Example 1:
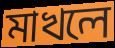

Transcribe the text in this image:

মাখলে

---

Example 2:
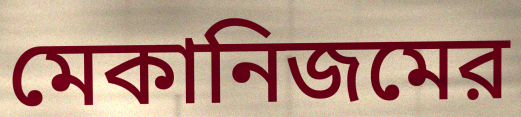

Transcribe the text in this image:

মেকানিজমের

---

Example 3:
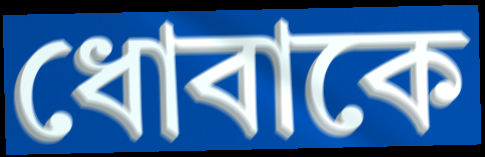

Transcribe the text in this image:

ধোবাকে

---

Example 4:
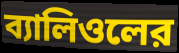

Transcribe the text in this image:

ব্যালিওলের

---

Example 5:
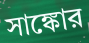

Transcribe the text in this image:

সাঙ্কোর